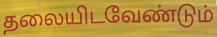
தலையிடவேண்டும்